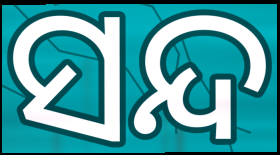
ସନ୍ଦ